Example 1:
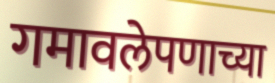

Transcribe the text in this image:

गमावलेपणाच्या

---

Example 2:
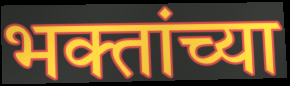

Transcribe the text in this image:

भक्तांच्या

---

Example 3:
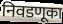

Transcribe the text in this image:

निवडणूका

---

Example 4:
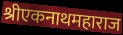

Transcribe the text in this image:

श्रीएकनाथमहाराज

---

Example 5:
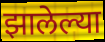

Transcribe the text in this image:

झालेल्या